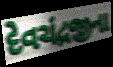
દેવચંદ્રજીના